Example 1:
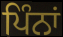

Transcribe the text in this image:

ਪਿੰਨਾਂ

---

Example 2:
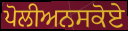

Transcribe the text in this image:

ਪੋਲੀਅਨਸਕੋਏ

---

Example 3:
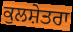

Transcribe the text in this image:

ਕੁਲਸ਼ੇਤਰਾ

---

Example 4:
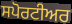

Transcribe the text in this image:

ਸਪੋਰਟੀਅਰ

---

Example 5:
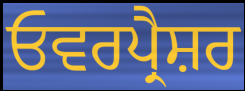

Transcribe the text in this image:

ਓਵਰਪ੍ਰੈਸ਼ਰ